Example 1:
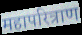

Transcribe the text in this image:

महापरित्राण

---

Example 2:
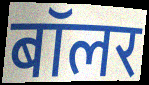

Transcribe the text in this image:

बॉलर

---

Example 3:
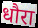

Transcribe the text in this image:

धौरा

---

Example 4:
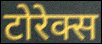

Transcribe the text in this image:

टोरेक्स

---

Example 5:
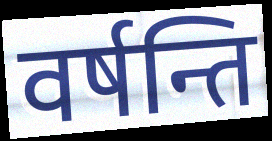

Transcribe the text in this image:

वर्षन्ति